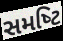
સમષ્‍ટિ